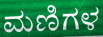
ಮಣಿಗಳ